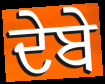
ਦੇਬੇ